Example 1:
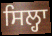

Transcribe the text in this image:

ਸਿਲ੍ਹਾ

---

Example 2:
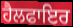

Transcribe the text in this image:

ਹੈਲਫਾਇਰ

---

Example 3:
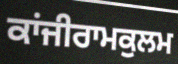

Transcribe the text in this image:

ਕਾਂਜੀਰਾਮਕੁਲਮ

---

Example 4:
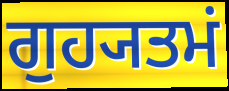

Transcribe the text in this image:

ਗੁਹ੍ਯਤਮਂ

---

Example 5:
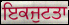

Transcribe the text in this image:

ਇਕਜੁਟਤਾ